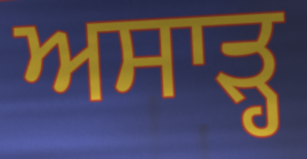
ਅਸਾੜ੍ਹ